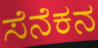
ಸೆನೆಕನ